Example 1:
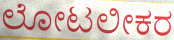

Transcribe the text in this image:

ಲೋಟಲೀಕರ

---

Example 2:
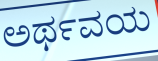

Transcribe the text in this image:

ಅರ್ಥವಯ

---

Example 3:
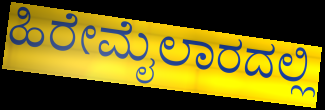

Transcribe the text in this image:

ಹಿರೇಮೈಲಾರದಲ್ಲಿ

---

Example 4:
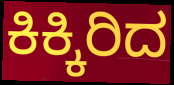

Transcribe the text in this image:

ಕಿಕ್ಕಿರಿದ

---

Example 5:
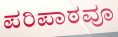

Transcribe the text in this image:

ಪರಿಪಾಠವೂ